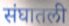
संघातली